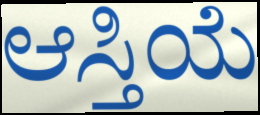
ಆಸ್ತಿಯೆ